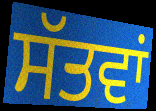
ਸੱਤਵਾਂ